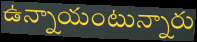
ఉన్నాయంటున్నారు